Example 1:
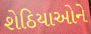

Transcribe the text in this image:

શેઠિયાઓને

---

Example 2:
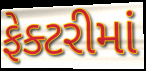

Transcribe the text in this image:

ફેક્ટરીમાં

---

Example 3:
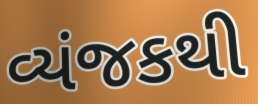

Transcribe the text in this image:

વ્યંજકથી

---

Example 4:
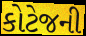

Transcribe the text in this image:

કોટેજની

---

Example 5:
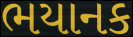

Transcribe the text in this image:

ભયાનક